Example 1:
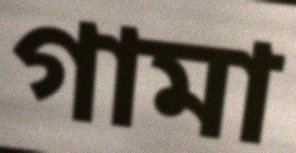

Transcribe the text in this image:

গামা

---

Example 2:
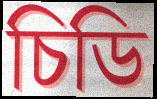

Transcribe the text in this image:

চিডি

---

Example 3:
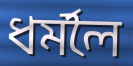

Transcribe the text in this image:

ধৰ্মলৈ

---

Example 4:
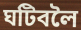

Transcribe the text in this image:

ঘটিবলৈ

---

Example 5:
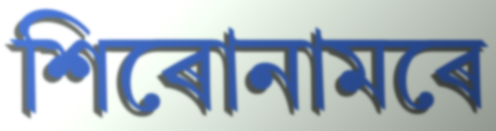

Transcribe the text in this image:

শিৰোনামৰে